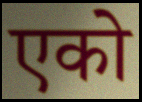
एको